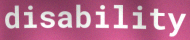
disability